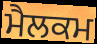
ਮੈਲਕਮ